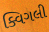
ક્વિગલી